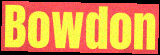
Bowdon